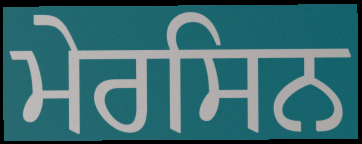
ਮੇਰਸਿਨ